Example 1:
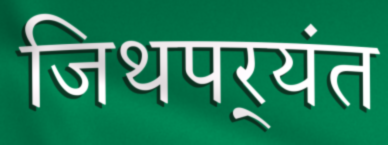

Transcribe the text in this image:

जिथपर्यंत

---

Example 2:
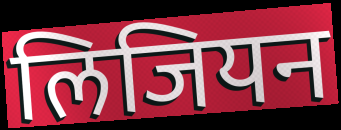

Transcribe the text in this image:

लिजियन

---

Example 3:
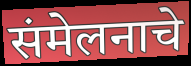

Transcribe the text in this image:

संमेलनाचे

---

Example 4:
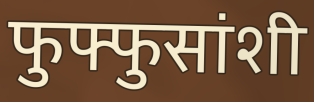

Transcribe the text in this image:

फुफ्फुसांशी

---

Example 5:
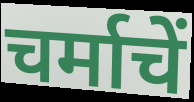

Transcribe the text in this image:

चर्माचें